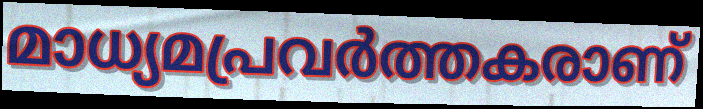
മാധ്യമപ്രവർത്തകരാണ്